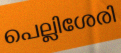
പെല്ലിശേരി